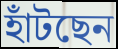
হাঁটছেন